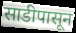
साडीपासून